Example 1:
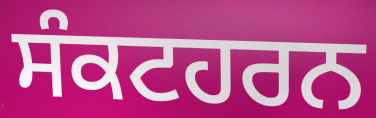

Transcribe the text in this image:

ਸੰਕਟਹਰਨ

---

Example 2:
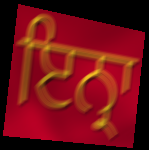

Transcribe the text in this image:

ਇਨ੍ਰਾ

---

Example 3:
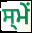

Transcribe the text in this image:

ਸ੍ਮੇਂ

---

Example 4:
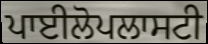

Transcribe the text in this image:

ਪਾਈਲੋਪਲਾਸਟੀ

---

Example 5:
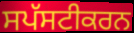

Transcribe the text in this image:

ਸਪੱਸਟੀਕਰਨ